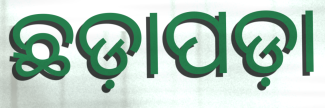
ଛଡ଼ାପଡ଼ା